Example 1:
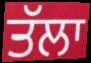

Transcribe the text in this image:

ਤੱਲਾ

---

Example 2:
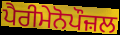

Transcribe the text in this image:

ਪੈਰੀਮੇਨੋਪੌਜ਼ਲ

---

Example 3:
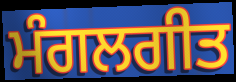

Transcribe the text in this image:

ਮੰਗਲਗੀਤ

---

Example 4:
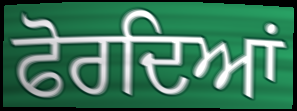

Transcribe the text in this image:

ਫੋਰਦਿਆਂ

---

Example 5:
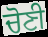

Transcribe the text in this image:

ਚੋਣੀ